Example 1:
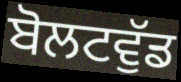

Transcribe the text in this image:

ਬੋਲਟਵੁੱਡ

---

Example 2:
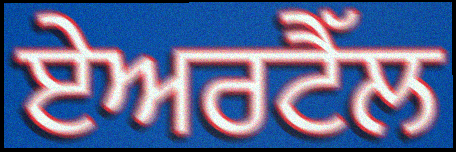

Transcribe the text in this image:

ਏਅਰਟੈੱਲ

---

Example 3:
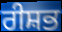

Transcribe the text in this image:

ਰੀਸ਼ਭ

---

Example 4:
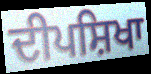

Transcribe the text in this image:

ਦੀਪਸ਼ਿਖਾ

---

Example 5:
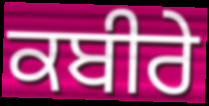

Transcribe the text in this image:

ਕਬੀਰੇ